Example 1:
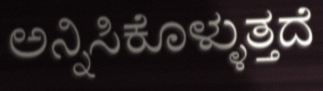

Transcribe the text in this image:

ಅನ್ನಿಸಿಕೊಳ್ಳುತ್ತದೆ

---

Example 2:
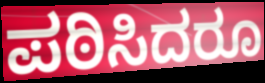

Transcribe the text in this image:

ಪಠಿಸಿದರೂ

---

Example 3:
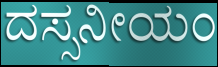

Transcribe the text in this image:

ದಸ್ಸನೀಯಂ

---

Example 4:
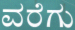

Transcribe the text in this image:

ವರೆಗು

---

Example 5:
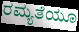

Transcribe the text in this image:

ರಮ್ಯತೆಯೂ